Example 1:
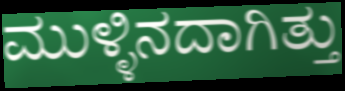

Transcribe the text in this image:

ಮುಳ್ಳಿನದಾಗಿತ್ತು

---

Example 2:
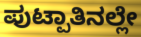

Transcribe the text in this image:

ಪುಟ್ಪಾತಿನಲ್ಲೇ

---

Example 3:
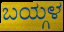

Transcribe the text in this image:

ಬಯ್ಗಳ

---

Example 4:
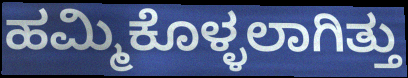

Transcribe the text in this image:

ಹಮ್ಮಿಕೊಳ್ಳಲಾಗಿತ್ತು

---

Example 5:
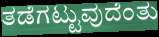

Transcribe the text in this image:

ತಡೆಗಟ್ಟುವುದೆಂತು